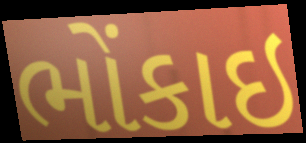
ભોંકાઇ